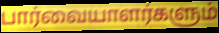
பார்வையாளர்களும்